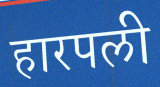
हारपली